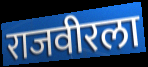
राजवीरला